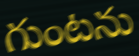
గుంటను